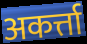
अकर्त्ता